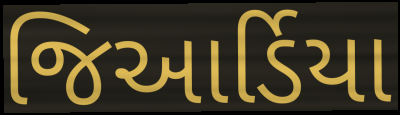
જિઆર્ડિયા